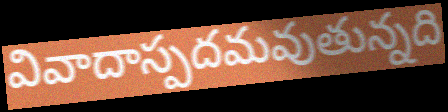
వివాదాస్పదమవుతున్నది